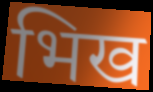
भिख